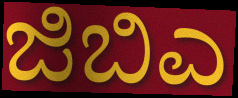
ಜಿಬಿಎ